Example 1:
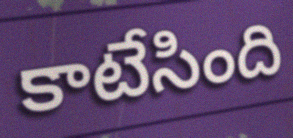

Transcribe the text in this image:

కాటేసింది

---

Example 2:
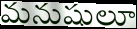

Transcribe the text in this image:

మనుషులూ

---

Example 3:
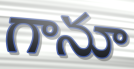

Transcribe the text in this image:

గానూ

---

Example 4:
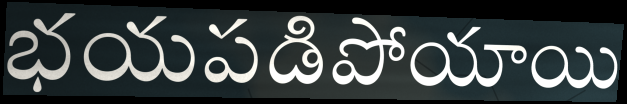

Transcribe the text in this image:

భయపడిపోయాయి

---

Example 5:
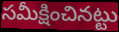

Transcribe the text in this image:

సమీక్షించినట్టు